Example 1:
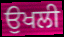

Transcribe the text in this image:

ਉਖਲੀ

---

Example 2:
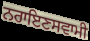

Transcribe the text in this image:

ਨਰਾਇਣਸਵਾਮੀ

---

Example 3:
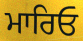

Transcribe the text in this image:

ਮਾਰਿਓ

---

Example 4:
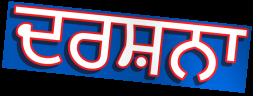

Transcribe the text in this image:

ਦਰਸ਼ਨਾ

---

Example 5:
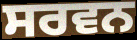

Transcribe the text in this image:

ਸਰਵਨ